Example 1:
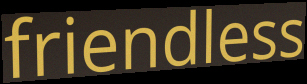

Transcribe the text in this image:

friendless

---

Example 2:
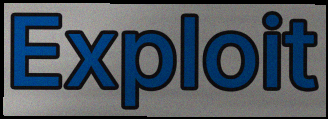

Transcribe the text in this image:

Exploit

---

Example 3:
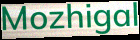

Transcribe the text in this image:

Mozhigal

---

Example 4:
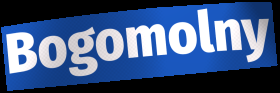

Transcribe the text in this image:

Bogomolny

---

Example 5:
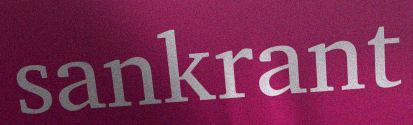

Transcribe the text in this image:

sankrant